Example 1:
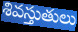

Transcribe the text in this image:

శివస్తుతులు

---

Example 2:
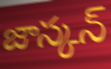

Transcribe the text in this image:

జాస్కన్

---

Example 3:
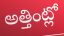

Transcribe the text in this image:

అత్తింట్లో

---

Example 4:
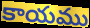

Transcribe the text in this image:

కాయము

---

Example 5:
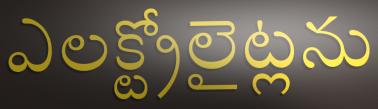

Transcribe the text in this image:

ఎలక్ట్రోలైట్లను